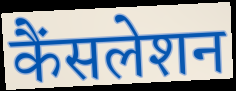
कैंसलेशन